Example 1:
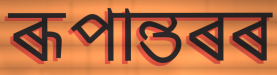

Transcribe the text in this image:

ৰূপান্তৰৰ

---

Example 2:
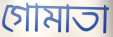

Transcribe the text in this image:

গোমাতা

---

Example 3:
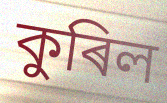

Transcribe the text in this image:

কুৰিল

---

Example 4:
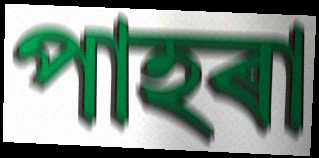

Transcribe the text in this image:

পাহৰা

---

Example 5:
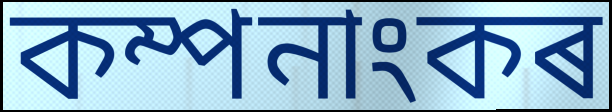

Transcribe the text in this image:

কম্পনাংকৰ